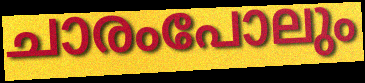
ചാരംപോലും